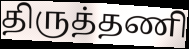
திருத்தணி